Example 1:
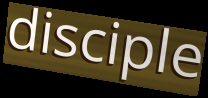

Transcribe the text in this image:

disciple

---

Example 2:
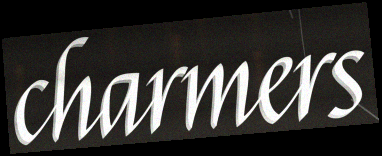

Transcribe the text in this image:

charmers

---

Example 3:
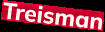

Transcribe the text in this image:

Treisman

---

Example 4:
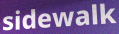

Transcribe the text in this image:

sidewalk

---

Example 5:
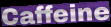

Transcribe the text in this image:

Caffeine